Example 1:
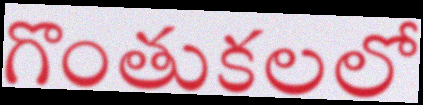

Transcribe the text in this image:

గొంతుకలలో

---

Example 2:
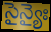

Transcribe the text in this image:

సైన్యైః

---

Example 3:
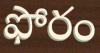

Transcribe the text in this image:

ఫోరం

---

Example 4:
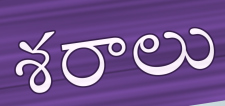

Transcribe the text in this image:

శరాలు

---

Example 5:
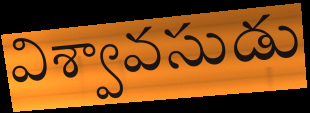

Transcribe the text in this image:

విశ్వావసుడు